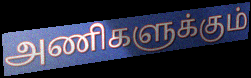
அணிகளுக்கும்